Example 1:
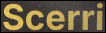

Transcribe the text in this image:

Scerri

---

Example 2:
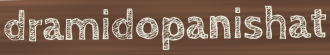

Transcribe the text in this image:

dramidopanishat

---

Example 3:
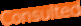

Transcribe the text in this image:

Consulted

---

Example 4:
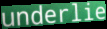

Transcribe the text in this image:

underlie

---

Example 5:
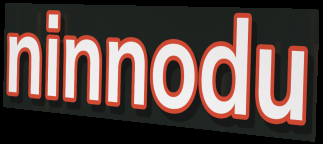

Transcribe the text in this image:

ninnodu